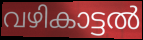
വഴികാട്ടൽ